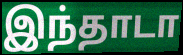
இந்தாடா